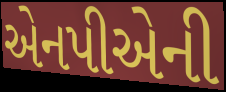
એનપીએની